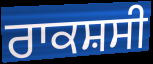
ਰਾਕਸ਼ਸੀ